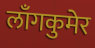
लाँगकुमेर